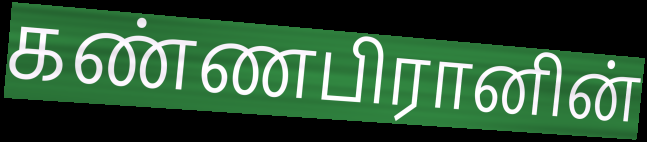
கண்ணபிரானின்